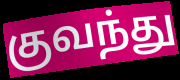
குவந்து